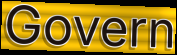
Govern